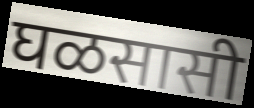
घळसासी